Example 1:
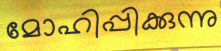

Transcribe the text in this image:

മോഹിപ്പിക്കുന്നു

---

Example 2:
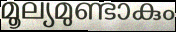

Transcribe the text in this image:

മൂല്യമുണ്ടാകും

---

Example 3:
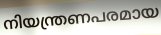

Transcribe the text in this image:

നിയന്ത്രണപരമായ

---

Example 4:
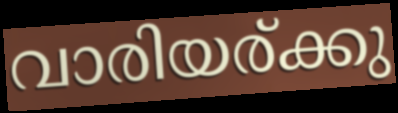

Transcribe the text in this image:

വാരിയര്ക്കു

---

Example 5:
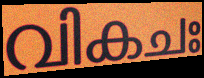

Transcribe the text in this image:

വികചഃ